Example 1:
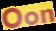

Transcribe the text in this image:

Oon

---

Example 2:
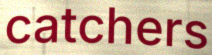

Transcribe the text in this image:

catchers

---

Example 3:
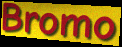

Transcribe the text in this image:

Bromo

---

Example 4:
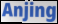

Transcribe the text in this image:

Anjing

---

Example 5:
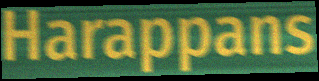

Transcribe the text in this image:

Harappans